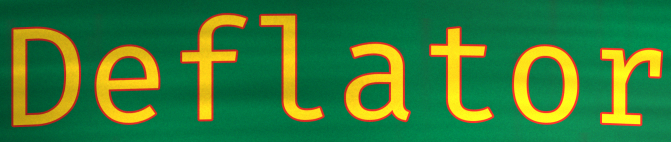
Deflator